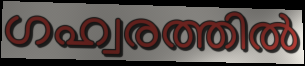
ഗഹ്വരത്തിൽ